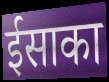
ईसाका